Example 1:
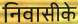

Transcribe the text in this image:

निवासीके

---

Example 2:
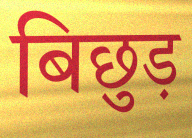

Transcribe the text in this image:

बिछुड़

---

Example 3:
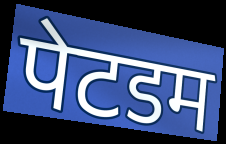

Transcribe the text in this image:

पेटडम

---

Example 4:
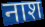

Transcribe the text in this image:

नाश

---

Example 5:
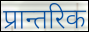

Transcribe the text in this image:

प्रान्तरिक